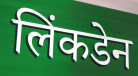
लिंकडेन